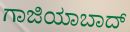
ಗಾಜಿಯಾಬಾದ್